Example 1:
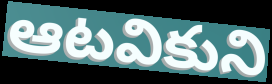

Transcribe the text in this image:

ఆటవికుని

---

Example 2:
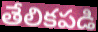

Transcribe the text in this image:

తేలికపడి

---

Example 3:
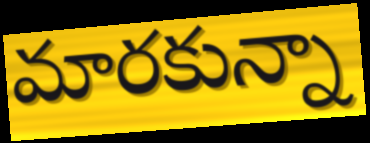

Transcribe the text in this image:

మారకున్నా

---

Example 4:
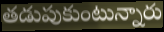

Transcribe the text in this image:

తడుపుకుంటున్నారు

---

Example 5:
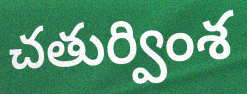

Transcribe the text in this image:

చతుర్వింశ